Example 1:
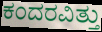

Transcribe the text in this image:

ಕಂದರವಿತ್ತು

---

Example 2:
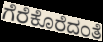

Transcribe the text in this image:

ಗೆರೆಕೊರೆದಂತೆ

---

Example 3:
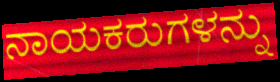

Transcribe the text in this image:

ನಾಯಕರುಗಳನ್ನು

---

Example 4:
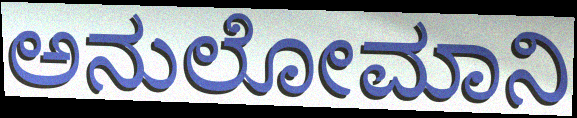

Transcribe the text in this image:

ಅನುಲೋಮಾನಿ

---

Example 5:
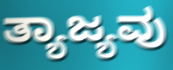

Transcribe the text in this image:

ತ್ಯಾಜ್ಯವು